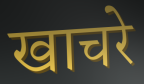
खाचरे